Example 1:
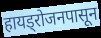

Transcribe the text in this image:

हायड्रोजनपासून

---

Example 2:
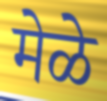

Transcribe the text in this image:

मेळे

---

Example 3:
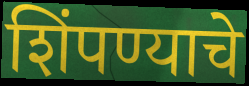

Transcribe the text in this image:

शिंपण्याचे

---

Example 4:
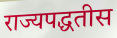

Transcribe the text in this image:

राज्यपद्धतीस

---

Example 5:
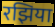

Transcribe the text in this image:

रझिया